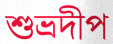
শুভ্রদীপ